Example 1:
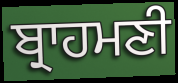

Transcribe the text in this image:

ਬ੍ਰਾਹਮਣੀ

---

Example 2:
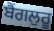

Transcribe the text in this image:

ਬੈਂਗਲੁਰੂ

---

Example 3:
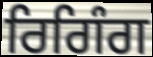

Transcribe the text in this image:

ਰਿਗਿੰਗ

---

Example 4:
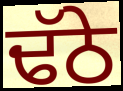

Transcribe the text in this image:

ਢੱਠੇ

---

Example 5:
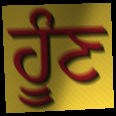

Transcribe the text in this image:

ਹੂੰਣ